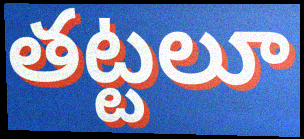
తట్టలూ